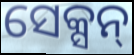
ସେକ୍ସନ୍